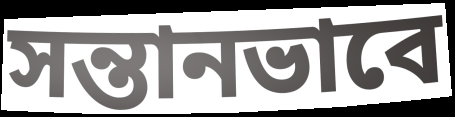
সন্তানভাবে